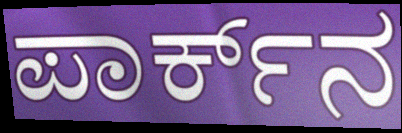
ಪಾರ್ಕ್‌ನ